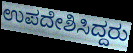
ಉಪದೇಶಿಸಿದ್ದರು